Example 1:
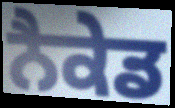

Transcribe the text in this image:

ਨੈਕੇਡ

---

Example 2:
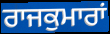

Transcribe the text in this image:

ਰਾਜਕੁਮਾਰਾਂ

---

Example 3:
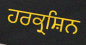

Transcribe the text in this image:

ਹਰਕ੍ਰਸ਼ਿਨ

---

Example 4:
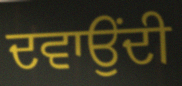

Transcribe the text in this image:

ਦਵਾਉਂਦੀ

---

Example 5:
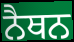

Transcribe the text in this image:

ਨੈਥਨ